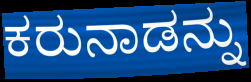
ಕರುನಾಡನ್ನು